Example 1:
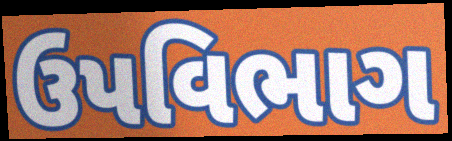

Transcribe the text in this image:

ઉપવિભાગ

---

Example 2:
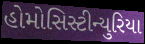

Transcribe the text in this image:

હોમોસિસ્ટીન્યુરિયા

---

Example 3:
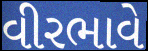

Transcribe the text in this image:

વીરભાવે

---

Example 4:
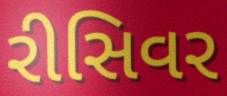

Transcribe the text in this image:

રીસિવર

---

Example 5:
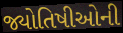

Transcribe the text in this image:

જ્યોતિષીઓની